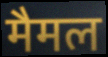
मैमल